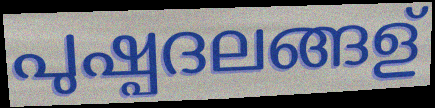
പുഷ്പദലങ്ങള്